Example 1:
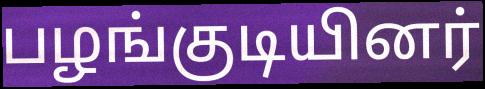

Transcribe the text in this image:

பழங்குடியினர்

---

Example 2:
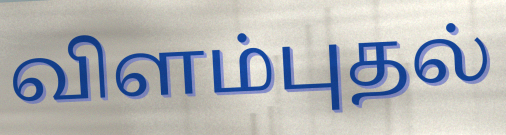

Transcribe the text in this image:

விளம்புதல்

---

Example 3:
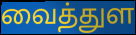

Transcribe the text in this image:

வைத்துள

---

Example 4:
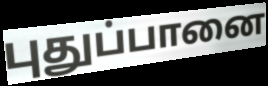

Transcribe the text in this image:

புதுப்பானை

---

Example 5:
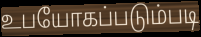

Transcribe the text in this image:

உபயோகப்படும்படி